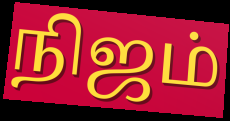
நிஜம்